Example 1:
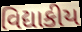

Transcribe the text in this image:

વિદ્યાકીય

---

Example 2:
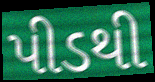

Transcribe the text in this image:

પીડથી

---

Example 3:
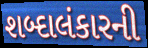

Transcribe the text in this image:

શબ્દાલંકારની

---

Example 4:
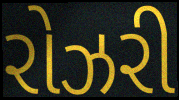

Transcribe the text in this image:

રોઝરી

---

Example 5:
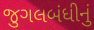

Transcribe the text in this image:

જુગલબંધીનું